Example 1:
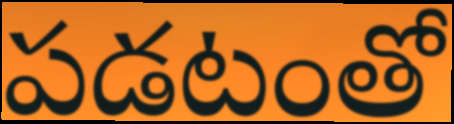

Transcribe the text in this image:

పడటంతో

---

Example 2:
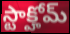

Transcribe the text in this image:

స్టాక్హోమ్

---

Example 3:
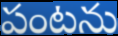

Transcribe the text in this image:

పంటను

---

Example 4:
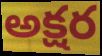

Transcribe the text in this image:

అక్షర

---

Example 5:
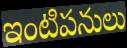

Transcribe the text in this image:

ఇంటిపనులు